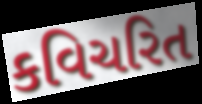
કવિચરિત